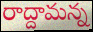
రాద్దామన్న